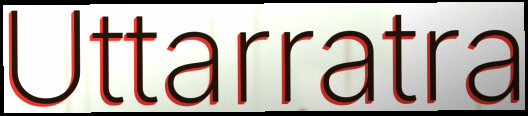
Uttarratra